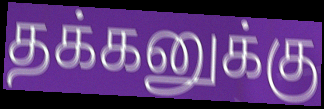
தக்கனுக்கு